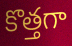
కొత్తగా